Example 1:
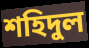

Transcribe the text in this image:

শহিদুল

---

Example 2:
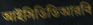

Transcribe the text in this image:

আইসিডিডিআরবি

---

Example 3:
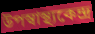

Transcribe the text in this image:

উপস্বাস্থ্যকেন্দ্র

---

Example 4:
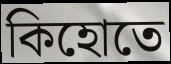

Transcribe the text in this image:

কিহোতে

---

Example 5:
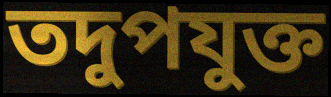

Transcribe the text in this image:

তদুপযুক্ত